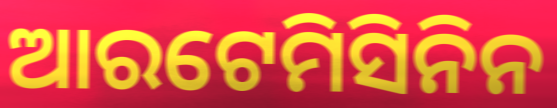
ଆରଟେମିସିନିନ